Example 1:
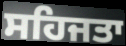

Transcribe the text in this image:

ਸਹਿਜਤਾ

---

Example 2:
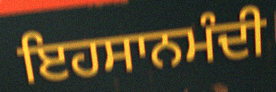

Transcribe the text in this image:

ਇਹਸਾਨਮੰਦੀ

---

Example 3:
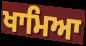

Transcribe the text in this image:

ਖਾਮਿਆ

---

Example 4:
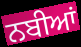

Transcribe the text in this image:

ਨਬੀਆਂ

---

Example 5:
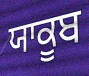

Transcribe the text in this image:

ਯਾਕੂਬ